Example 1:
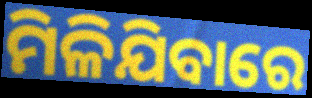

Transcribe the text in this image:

ମିଳିଯିବାରେ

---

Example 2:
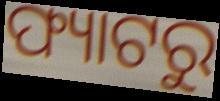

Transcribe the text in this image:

ଫ୍ୟାଟରୁ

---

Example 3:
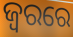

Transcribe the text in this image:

ଜ୍ବରରେ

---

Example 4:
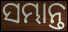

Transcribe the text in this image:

ସମ୍ଭାନ୍ତ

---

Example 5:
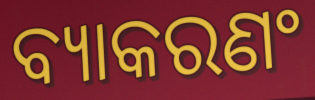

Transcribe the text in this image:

ବ୍ୟାକରଣଂ